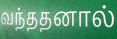
வந்ததனால்